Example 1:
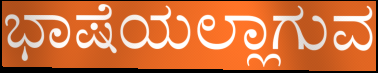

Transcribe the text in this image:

ಭಾಷೆಯಲ್ಲಾಗುವ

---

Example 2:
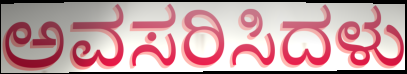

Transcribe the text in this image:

ಅವಸರಿಸಿದಳು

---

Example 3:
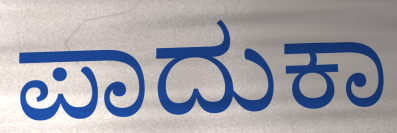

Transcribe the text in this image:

ಪಾದುಕಾ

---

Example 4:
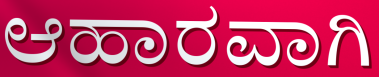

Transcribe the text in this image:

ಆಹಾರವಾಗಿ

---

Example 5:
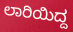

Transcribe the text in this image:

ಲಾರಿಯಿದ್ದ